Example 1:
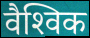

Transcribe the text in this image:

वैश्‍विक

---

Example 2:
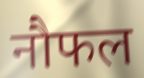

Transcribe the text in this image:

नौफल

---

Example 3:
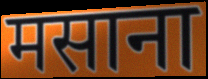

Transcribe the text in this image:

मसाना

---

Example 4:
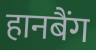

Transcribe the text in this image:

हानबैंग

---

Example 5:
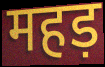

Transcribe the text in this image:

महड़